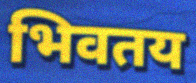
भिवतय